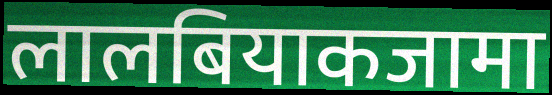
लालबियाकजामा